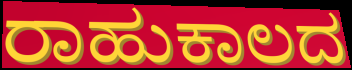
ರಾಹುಕಾಲದ